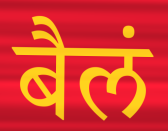
बैलं